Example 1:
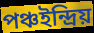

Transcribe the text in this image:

পঞ্চইন্দ্রিয়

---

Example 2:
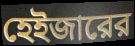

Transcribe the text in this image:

হেইজারের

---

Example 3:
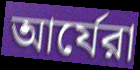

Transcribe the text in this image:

আর্যেরা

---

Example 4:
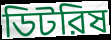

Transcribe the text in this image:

ডিটরিষ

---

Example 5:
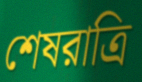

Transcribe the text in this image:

শেষরাত্রি